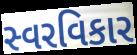
સ્વરવિકાર